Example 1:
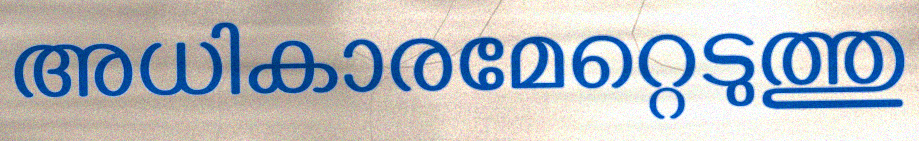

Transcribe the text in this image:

അധികാരമേറ്റെടുത്തു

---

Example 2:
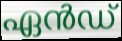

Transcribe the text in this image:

ഏൻഡ്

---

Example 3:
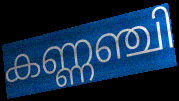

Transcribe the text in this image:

കണ്ണഞ്ചി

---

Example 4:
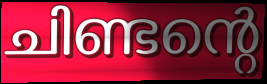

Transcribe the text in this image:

ചിണ്ടന്റെ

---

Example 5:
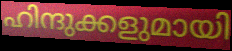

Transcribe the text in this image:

ഹിന്ദുക്കളുമായി